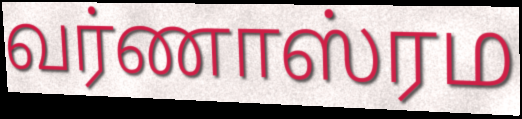
வர்ணாஸ்ரம